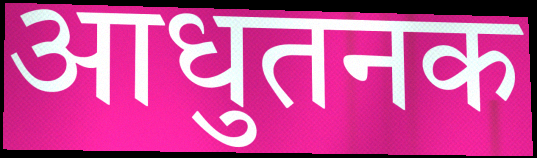
आधुतनक